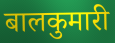
बालकुमारी